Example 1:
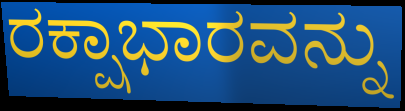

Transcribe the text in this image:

ರಕ್ಷಾಭಾರವನ್ನು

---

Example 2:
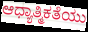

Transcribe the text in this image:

ಆಧ್ಯಾತ್ಮಿಕತೆಯು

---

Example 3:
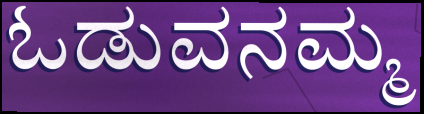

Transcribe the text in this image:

ಓಡುವನಮ್ಮ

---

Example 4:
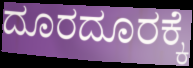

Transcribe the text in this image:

ದೂರದೂರಕ್ಕೆ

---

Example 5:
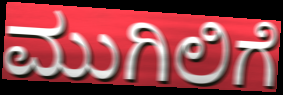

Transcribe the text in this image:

ಮುಗಿಲಿಗೆ